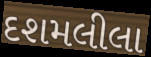
દશમલીલા